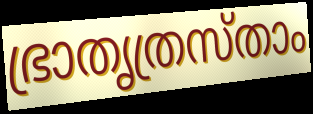
ഭ്രാതൃത്രസ്താം